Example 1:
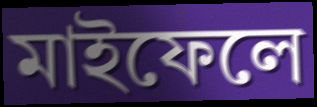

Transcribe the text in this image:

মাইফেলে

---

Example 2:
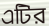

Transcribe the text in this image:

এটির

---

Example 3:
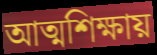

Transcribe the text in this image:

আত্মশিক্ষায়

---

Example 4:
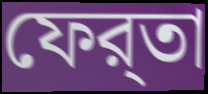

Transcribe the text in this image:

ফের্‌তা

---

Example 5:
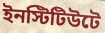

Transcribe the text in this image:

ইনস্টিটিউটে